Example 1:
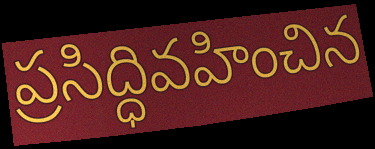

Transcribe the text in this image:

ప్రసిద్ధివహించిన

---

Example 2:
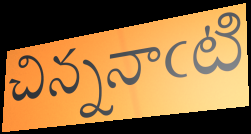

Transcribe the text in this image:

చిన్ననాఁటి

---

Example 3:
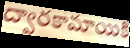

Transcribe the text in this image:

ద్వారకామాయికి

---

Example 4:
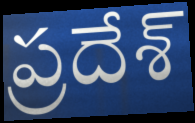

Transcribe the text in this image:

ప్రదేశ్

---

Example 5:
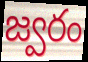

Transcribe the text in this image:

జ్వరం